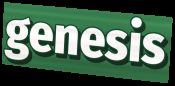
genesis